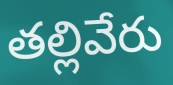
తల్లివేరు